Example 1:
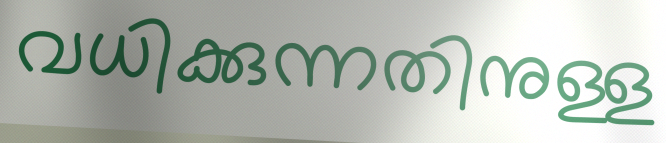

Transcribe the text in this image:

വധിക്കുന്നതിനുള്ള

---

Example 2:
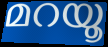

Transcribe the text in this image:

മറയൂ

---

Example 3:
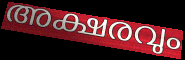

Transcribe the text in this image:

അക്ഷരവും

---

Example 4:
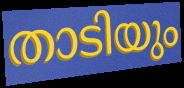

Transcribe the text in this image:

താടിയും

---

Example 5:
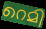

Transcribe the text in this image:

റെമി